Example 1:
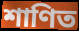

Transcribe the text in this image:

শাণিত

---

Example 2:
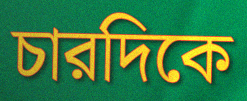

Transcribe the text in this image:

চারদিকে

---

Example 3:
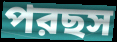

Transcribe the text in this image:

পরছস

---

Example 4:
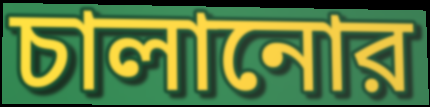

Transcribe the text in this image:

চালানোর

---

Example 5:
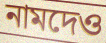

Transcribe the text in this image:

নামদেও